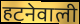
हटनेवाली